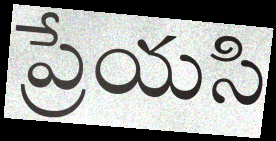
ప్రేయసి